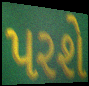
પરશે